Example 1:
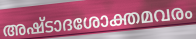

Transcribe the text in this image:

അഷ്ടാദശോക്തമവരം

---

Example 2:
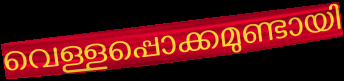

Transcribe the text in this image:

വെള്ളപ്പൊക്കമുണ്ടായി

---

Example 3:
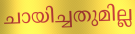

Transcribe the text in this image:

ചായിച്ചതുമില്ല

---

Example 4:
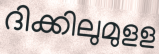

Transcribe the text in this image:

ദിക്കിലുമുളള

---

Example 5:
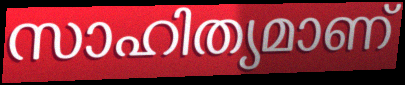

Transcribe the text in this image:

സാഹിത്യമാണ്